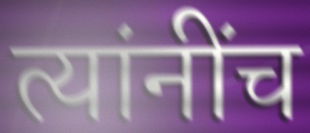
त्यांनींच